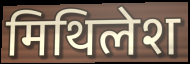
मिथिलेश